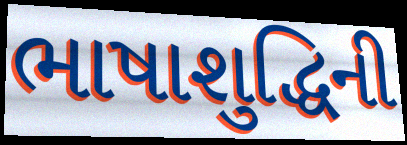
ભાષાશુદ્ધિની